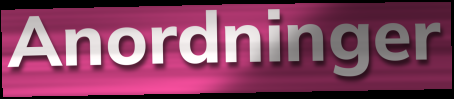
Anordninger